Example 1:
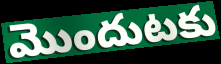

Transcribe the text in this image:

మొందుటకు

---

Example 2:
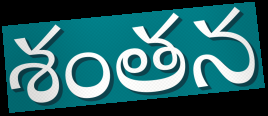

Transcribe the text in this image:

శంతన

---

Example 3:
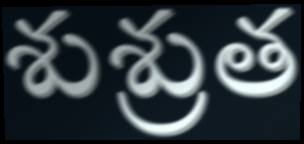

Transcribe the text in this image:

శుశ్రుత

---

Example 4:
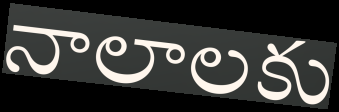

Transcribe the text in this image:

నాలాలకు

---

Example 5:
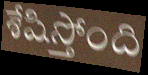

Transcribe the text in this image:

శేషిస్తోంది